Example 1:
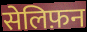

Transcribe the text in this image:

सेलिफ़न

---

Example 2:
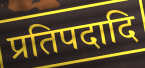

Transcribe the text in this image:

प्रतिपदादि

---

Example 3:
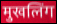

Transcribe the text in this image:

मुखलिंग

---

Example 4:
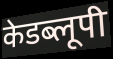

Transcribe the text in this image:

केडब्लूपी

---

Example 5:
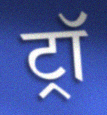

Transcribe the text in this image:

ट्रॉ